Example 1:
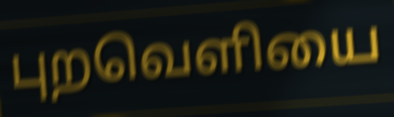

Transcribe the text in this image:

புறவெளியை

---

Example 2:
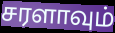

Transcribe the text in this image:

சரளாவும்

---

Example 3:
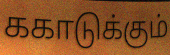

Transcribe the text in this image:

ககாடுக்கும்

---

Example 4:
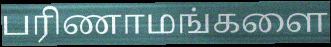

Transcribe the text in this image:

பரிணாமங்களை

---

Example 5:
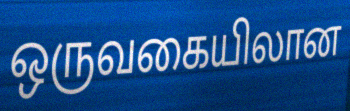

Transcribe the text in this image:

ஒருவகையிலான